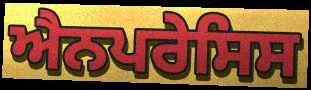
ਐਨਪਰੇਸਿਸ